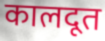
कालदूत